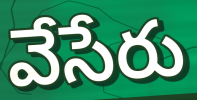
వేసేరు